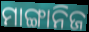
ମାଙ୍ଗାନିଜ